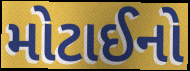
મોટાઈનો